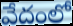
వేదంలో